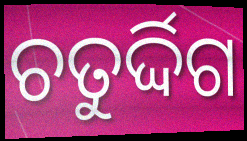
ଚତୁର୍ଦ୍ଦିଗ